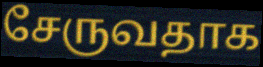
சேருவதாக